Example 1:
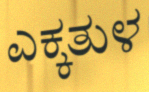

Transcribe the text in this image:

ಎಕ್ಕತುಳ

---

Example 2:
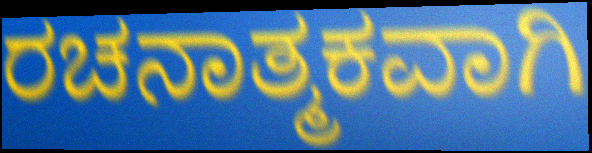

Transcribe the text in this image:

ರಚನಾತ್ಮಕವಾಗಿ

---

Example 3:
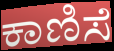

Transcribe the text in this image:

ಕಾಣಿಸೆ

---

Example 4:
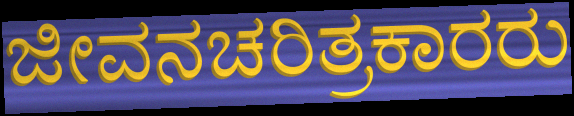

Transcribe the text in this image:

ಜೀವನಚರಿತ್ರಕಾರರು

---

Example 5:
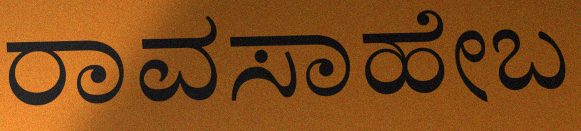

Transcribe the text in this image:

ರಾವಸಾಹೇಬ